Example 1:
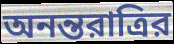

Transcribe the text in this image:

অনন্তরাত্রির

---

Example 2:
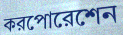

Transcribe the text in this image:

করপোরেশেন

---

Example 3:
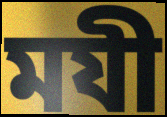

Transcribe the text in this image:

মযী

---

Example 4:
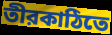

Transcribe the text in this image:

তীরকাঠিতে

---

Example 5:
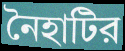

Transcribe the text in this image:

নৈহাটির